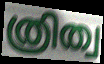
ത്രിത്വ